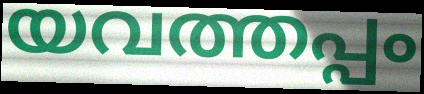
യവത്തപ്പം